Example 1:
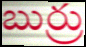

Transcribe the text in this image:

బుర్రు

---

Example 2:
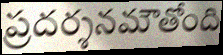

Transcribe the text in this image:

ప్రదర్శనమౌతోంది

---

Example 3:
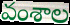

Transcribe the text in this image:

వంశాల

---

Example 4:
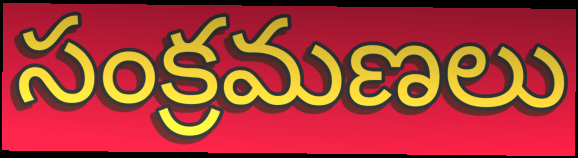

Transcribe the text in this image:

సంక్రమణలు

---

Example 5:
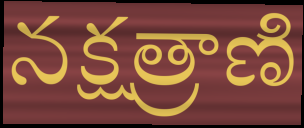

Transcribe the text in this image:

నక్షత్రాణి